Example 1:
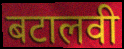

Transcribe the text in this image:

बटालवी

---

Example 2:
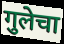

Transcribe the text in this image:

गुलेचा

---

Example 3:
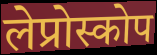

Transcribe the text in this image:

लेप्रोस्कोप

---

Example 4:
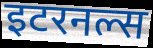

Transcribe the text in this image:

इटरनल्स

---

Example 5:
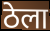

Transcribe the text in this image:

ठेला